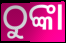
ଠୁଙ୍କା